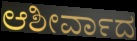
ಆಶೀರ್ವಾದ